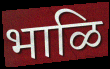
भाळि